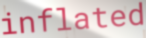
inflated